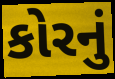
કોરનું